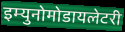
इम्युनोमोडायलेटरी